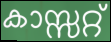
കാസ്സറ്റ്